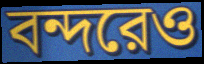
বন্দরেও